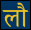
लौ